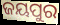
ଜୟପୁର